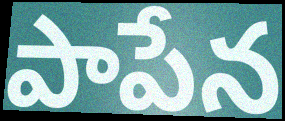
పాపేన